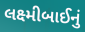
લક્ષ્મીબાઈનું